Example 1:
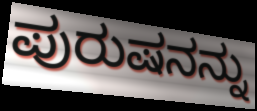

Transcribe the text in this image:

ಪುರುಷನನ್ನು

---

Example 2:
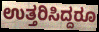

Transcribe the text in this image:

ಉತ್ತರಿಸಿದ್ದರೂ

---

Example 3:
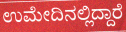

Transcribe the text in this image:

ಉಮೇದಿನಲ್ಲಿದ್ದಾರೆ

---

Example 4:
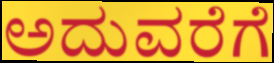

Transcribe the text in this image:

ಅದುವರೆಗೆ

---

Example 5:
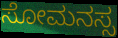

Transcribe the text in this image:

ಸೋಮನಸ್ಸ